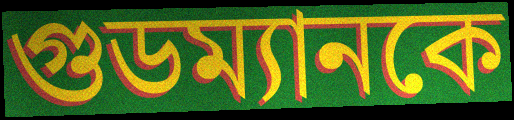
গুডম্যানকে